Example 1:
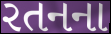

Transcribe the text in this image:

રતનના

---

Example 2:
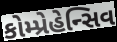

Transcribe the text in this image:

કોમ્પ્રેહેન્સિવ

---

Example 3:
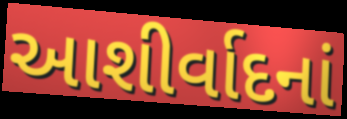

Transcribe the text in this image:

આશીર્વાદનાં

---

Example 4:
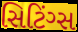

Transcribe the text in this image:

સિટિંગ્સ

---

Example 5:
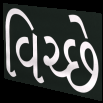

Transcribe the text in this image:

વિચ્છે